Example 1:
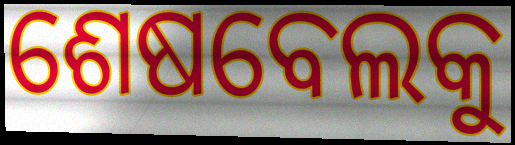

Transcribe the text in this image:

ଶେଷବେଲକୁ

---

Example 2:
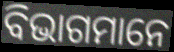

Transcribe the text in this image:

ବିଭାଗମାନେ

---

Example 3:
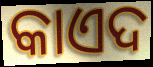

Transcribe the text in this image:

କାଏଦ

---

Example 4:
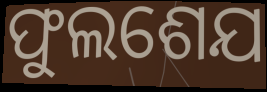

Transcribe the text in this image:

ଫୁଲଶେଯ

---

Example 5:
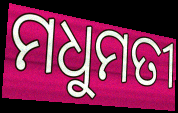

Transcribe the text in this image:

ମଧୁମତୀ